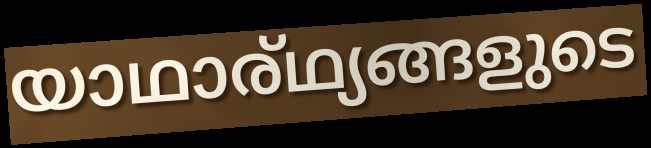
യാഥാര്ഥ്യങ്ങളുടെ